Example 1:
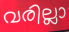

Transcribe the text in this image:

വരില്ലാ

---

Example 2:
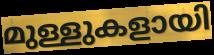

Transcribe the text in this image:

മുള്ളുകളായി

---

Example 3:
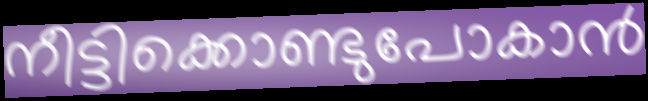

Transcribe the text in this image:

നീട്ടിക്കൊണ്ടുപോകാൻ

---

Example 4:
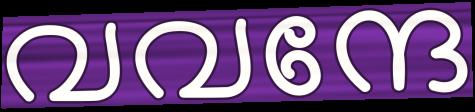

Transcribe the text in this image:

വവന്ദേ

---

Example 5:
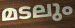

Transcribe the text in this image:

മടലും